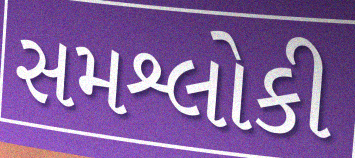
સમશ્લોકી